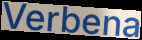
Verbena